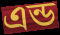
এন্ড